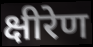
क्षीरेण